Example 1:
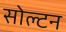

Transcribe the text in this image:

सोल्टन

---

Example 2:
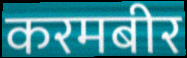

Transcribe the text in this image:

करमबीर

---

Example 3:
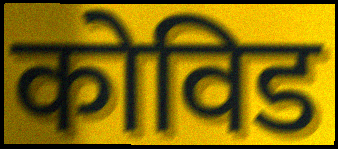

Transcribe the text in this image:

कोविड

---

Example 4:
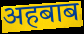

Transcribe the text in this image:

अहबाब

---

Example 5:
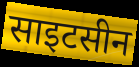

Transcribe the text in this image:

साइटसीन